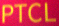
PTCL